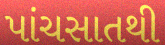
પાંચસાતથી